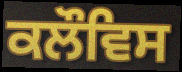
ਕਲੌਵਿਸ